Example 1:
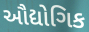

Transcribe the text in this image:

ઔદ્યોગિક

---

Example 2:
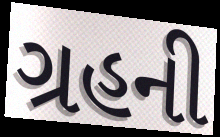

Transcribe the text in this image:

ગ્રહની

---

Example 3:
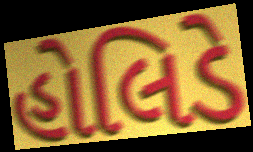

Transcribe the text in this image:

હોલિડે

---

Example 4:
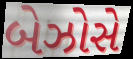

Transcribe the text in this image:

બેઝોસે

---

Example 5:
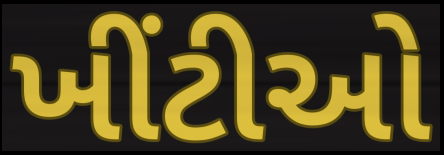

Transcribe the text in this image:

ખીંટીઓ